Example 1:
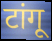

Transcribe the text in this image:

टांगू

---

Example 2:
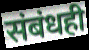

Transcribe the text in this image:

संबंधही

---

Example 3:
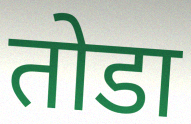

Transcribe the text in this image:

तोडा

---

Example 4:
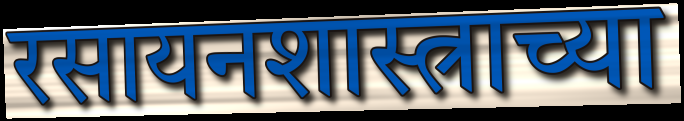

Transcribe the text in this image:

रसायनशास्त्राच्या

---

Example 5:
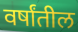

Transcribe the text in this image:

वर्षांतील